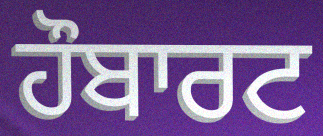
ਹੌਬਾਰਟ